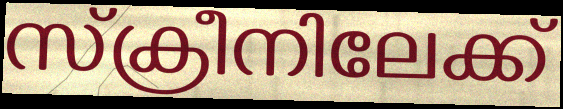
സ്‌ക്രീനിലേക്ക്